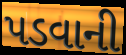
પડવાની